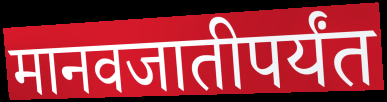
मानवजातीपर्यंत